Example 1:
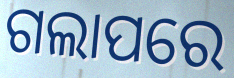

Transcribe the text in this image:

ଗଲାପରେ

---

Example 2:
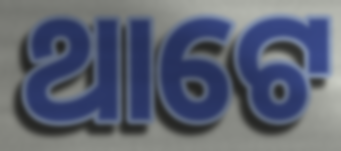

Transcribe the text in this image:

ଥାଟେ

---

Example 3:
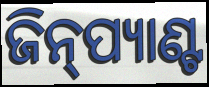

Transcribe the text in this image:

ଜିନ୍‍ପ୍ୟାଣ୍ଟ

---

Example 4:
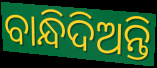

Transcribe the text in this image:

ବାନ୍ଧିଦିଅନ୍ତି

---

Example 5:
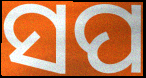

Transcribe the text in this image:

ସପ